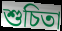
শুচিতা